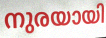
നുരയായി